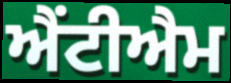
ਐਂਟੀਐਮ